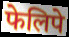
फेलिपे